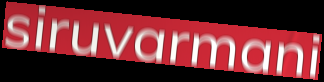
siruvarmani